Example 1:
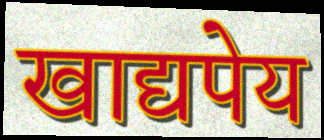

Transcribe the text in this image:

खाद्यपेय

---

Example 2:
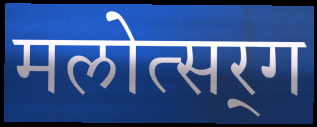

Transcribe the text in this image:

मलोत्सर्ग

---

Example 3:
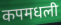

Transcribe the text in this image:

कपमधली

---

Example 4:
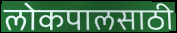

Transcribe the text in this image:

लोकपालसाठी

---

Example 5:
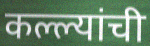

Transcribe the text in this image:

कल्ल्यांची